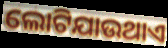
ଲୋଟିଯାଉଥାଏ